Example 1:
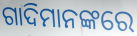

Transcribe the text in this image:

ଗାଦିମାନଙ୍କରେ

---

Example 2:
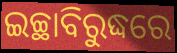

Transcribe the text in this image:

ଇଚ୍ଛାବିରୁଦ୍ଧରେ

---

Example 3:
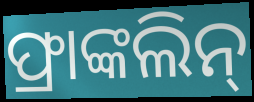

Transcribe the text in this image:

ଫ୍ରାଙ୍କଲିନ୍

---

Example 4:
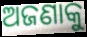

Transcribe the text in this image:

ଅଜଣାକୁ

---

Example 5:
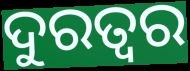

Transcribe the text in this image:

ଦୁରତ୍ଵର